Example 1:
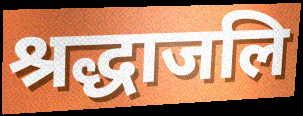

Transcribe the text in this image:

श्रद्धाजलि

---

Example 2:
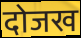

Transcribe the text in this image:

दोजख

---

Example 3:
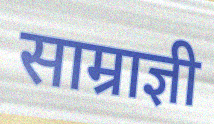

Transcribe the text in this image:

साम्राज्ञी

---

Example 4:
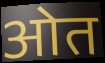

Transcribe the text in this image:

ओत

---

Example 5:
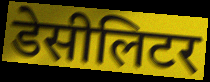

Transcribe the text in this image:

डेसीलिटर